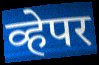
व्हेपर